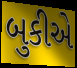
બુકીએ